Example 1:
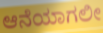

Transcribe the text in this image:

ಆನೆಯಾಗಲೀ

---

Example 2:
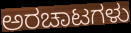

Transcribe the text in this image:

ಅರಚಾಟಗಳು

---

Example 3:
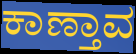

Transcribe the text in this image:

ಕಾಣ್ತಾವ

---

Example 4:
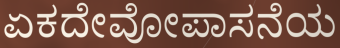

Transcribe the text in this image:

ಏಕದೇವೋಪಾಸನೆಯ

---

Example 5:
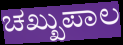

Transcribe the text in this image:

ಚಖ್ಖುಪಾಲ